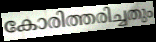
കോരിത്തരിച്ചതും